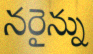
నరైన్ను